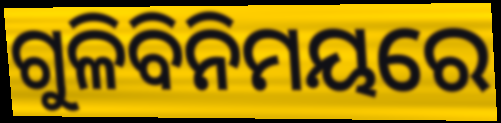
ଗୁଳିବିନିମୟରେ